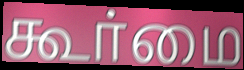
கூர்மை